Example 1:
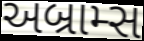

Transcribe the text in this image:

અબ્રામ્સ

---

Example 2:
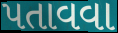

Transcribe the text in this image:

પતાવવા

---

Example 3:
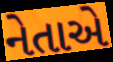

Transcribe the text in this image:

નેતાએ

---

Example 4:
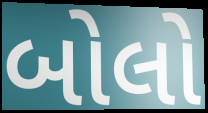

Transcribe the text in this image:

બોલો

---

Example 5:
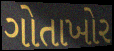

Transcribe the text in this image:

ગોતાખોર